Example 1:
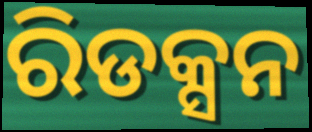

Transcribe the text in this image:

ରିଡକ୍ସନ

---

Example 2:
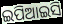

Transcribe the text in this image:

ଇପିଆଇସି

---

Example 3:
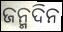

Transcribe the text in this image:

ଜନ୍ମଦିନ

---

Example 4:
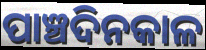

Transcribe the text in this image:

ପାଞ୍ଚଦିନକାଳ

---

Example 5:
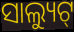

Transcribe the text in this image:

ସାଲ୍ୟୁଟ୍